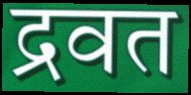
द्रवत